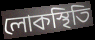
লোকস্থিতি